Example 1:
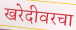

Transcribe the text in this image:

खरेदीवरचा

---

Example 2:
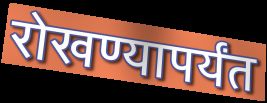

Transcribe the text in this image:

रोखण्यापर्यंत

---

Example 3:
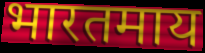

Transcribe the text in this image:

भारतमाय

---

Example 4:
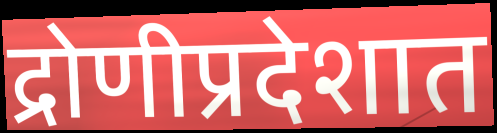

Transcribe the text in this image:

द्रोणीप्रदेशात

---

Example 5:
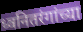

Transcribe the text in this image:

ध्वनितरंगांच्या